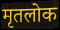
मृतलोक